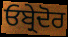
ਓਬ੍ਰੇਦੋਰ